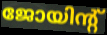
ജോയിന്റ്